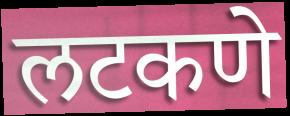
लटकणे